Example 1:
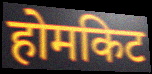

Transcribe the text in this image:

होमकिट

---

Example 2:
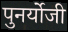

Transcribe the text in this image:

पुनर्योजी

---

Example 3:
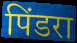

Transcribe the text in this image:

पिंडरा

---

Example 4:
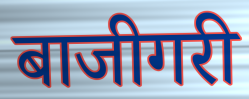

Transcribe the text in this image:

बाजीगरी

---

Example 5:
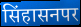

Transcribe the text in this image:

सिंहासनपर